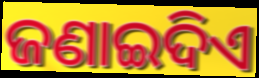
ଜଣାଇଦିଏ